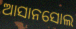
ଆସାନସୋଲ